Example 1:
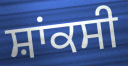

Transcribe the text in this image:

ਸ਼ਾਂਕਸੀ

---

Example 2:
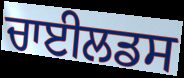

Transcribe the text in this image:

ਚਾਈਲਡਸ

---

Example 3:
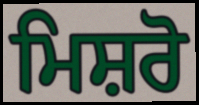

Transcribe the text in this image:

ਮਿਸ਼ਰੋ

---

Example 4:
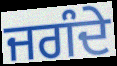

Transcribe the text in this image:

ਜਗੰਦੇ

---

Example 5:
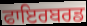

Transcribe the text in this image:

ਫਾਇਰਬਰਡ